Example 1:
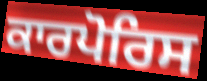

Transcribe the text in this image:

ਕਾਰਪੋਰਿਸ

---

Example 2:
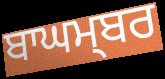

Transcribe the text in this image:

ਬਾਘਮ੍ਬਰ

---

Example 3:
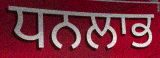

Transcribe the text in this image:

ਧਨਲਾਭ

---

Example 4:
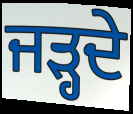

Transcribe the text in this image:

ਜੜ੍ਹਦੇ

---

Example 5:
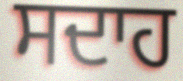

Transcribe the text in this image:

ਸਦਾਹ